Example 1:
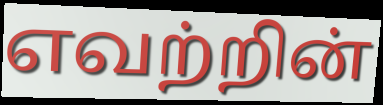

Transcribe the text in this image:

எவற்றின்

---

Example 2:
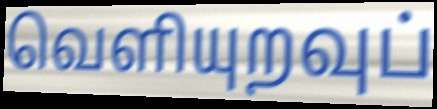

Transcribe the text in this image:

வெளியுறவுப்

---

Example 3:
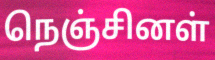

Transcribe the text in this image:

நெஞ்சினள்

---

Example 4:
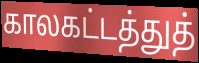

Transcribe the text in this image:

காலகட்டத்துத்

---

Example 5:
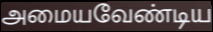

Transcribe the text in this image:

அமையவேண்டிய